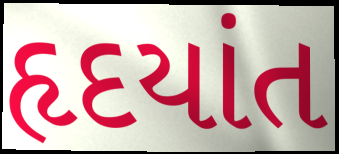
હૃદયાંત